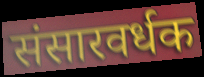
संसारवर्धक